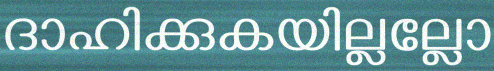
ദാഹിക്കുകയില്ലല്ലോ